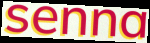
senna